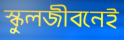
স্কুলজীবনেই